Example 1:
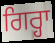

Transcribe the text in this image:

ਗਿਰ੍ਹਾ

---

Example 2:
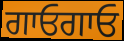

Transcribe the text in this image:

ਗਾਓਗਾਓ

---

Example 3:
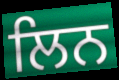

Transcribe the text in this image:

ਲਿਨ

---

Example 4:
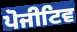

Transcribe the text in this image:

ਪੋਜੀਟਿਵ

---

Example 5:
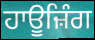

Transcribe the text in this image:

ਹਾਊਜ਼ਿੰਗ